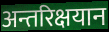
अन्तरिक्षयान